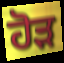
ਹੋੜ